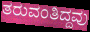
ತರುವಂತಿದ್ದವು